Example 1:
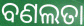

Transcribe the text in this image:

ବଣଲତା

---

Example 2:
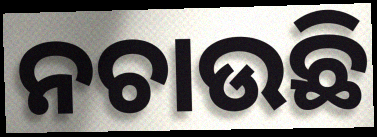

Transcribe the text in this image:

ନଚାଉଛି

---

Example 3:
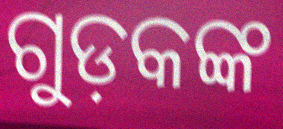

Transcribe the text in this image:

ଗୁଡ଼କଙ୍କ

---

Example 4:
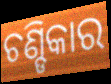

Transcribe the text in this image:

ଚଣ୍ଡିକାର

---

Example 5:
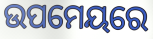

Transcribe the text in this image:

ଉପମେୟରେ